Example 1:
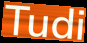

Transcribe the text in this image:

Tudi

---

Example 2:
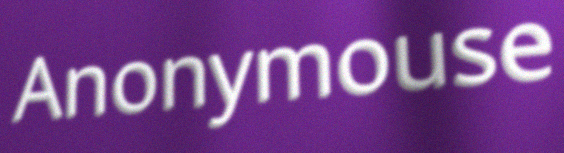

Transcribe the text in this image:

Anonymouse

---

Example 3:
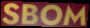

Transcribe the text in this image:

SBOM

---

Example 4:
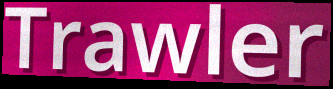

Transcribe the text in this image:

Trawler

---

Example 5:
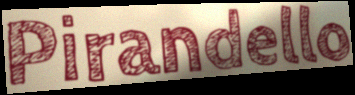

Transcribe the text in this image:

Pirandello